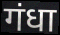
गंधा